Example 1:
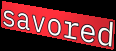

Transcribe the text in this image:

savored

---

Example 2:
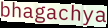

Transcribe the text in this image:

bhagachya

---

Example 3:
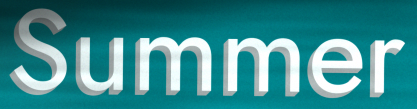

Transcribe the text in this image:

Summer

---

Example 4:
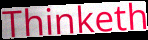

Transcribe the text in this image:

Thinketh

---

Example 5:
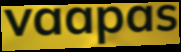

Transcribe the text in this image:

vaapas